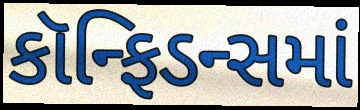
કૉન્ફિડન્સમાં